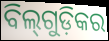
ବିଲ୍‌ଗୁଡ଼ିକର